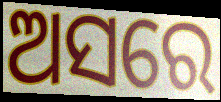
ଅସରେ